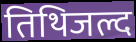
तिथिजल्द